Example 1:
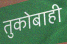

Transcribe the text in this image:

तुकोबाही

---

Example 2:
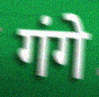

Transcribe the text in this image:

गंगे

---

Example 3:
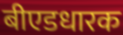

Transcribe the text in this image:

बीएडधारक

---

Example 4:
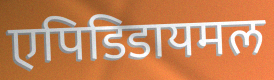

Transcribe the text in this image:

एपिडिडायमल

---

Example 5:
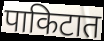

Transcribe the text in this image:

पाकिटात